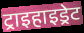
ट्राइहाइड्रेट